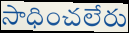
సాధించలేరు